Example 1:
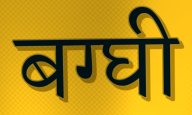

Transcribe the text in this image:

बग्घी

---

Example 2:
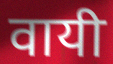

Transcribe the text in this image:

वायी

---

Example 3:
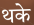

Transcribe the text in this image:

थके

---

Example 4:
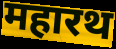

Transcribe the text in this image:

महारथ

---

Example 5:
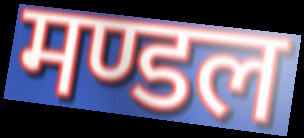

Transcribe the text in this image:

मण्डल